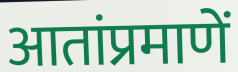
आतांप्रमाणें